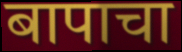
बापाचा